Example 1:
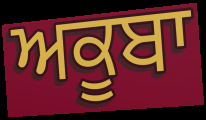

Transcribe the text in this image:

ਅਕੂਬਾ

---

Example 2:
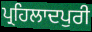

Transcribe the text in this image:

ਪ੍ਰਹਿਲਾਦਪੁਰੀ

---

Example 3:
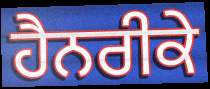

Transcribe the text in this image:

ਹੈਨਰੀਕੇ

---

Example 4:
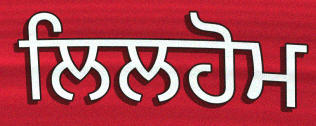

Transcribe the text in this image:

ਲਿਲਹੋਮ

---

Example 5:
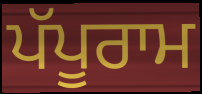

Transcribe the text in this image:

ਪੱਪੂਰਾਮ